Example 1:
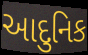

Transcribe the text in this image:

આદુનિક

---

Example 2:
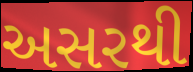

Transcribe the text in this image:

અસરથી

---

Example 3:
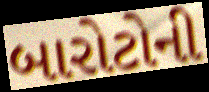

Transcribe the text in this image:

બારોટોની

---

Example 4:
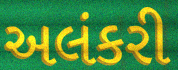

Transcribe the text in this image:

અલંકરી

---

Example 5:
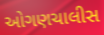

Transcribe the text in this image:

ઓગણચાલીસ